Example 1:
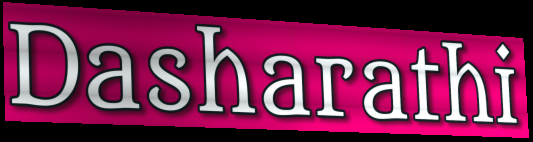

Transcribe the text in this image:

Dasharathi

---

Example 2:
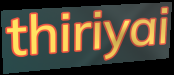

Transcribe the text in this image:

thiriyai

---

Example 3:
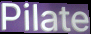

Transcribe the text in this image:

Pilate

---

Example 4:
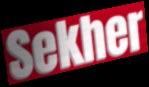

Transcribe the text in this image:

Sekher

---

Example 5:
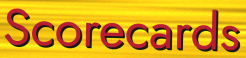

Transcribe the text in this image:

Scorecards